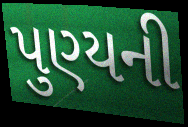
પુણ્યની